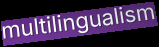
multilingualism